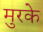
मुरके